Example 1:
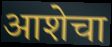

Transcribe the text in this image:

आशेचा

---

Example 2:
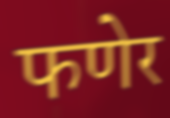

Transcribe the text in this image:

फणेर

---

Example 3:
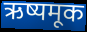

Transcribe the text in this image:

ऋष्यमूक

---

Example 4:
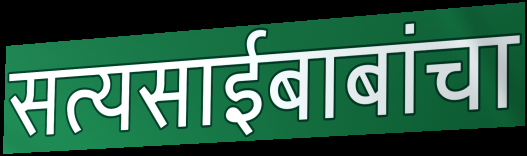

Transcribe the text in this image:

सत्यसाईबाबांचा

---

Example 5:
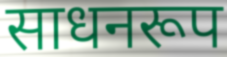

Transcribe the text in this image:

साधनरूप